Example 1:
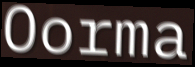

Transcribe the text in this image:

Oorma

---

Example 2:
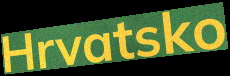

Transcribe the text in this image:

Hrvatsko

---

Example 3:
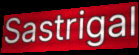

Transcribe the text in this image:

Sastrigal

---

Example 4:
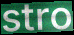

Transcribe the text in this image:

stro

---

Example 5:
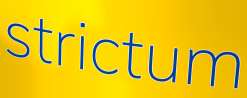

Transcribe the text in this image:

strictum